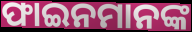
ଫାଇନମାନଙ୍କ